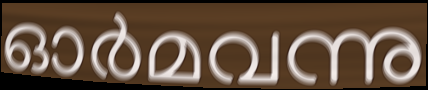
ഓർമവന്നു